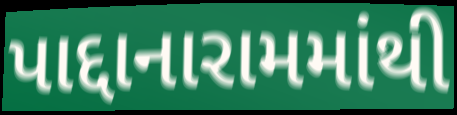
પાદ્દાનારામમાંથી